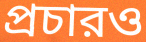
প্রচারও